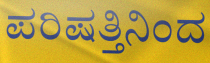
ಪರಿಷತ್ತಿನಿಂದ